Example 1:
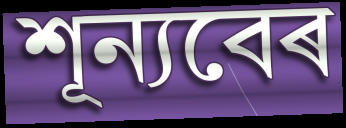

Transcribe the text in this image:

শূন্যবেৰ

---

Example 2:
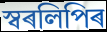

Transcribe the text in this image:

স্বৰলিপিৰ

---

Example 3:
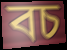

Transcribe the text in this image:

বচ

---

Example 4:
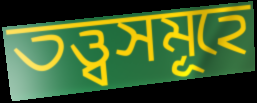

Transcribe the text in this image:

তত্ত্বসমূহে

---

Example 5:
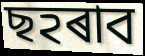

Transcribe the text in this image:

ছহৰাব